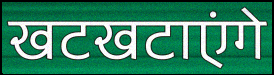
खटखटाएंगे